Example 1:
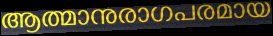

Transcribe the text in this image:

ആത്മാനുരാഗപരമായ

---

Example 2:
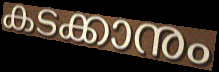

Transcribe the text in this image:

കടക്കാനും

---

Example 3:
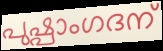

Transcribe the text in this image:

പുഷ്പാംഗദന്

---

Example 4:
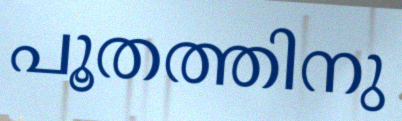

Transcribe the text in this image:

പൂതത്തിനു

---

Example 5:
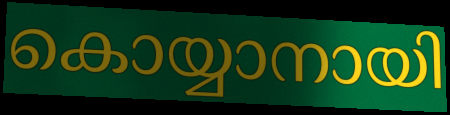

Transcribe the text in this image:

കൊയ്യാനായി